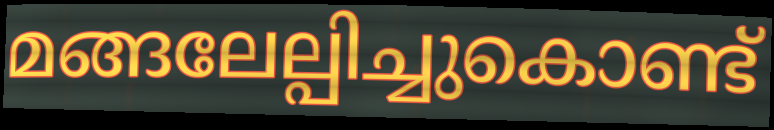
മങ്ങലേല്പിച്ചുകൊണ്ട്